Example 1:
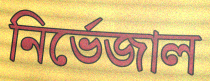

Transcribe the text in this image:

নিৰ্ভেজাল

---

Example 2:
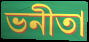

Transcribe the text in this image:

ভনীতা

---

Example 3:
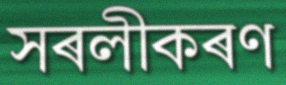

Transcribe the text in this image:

সৰলীকৰণ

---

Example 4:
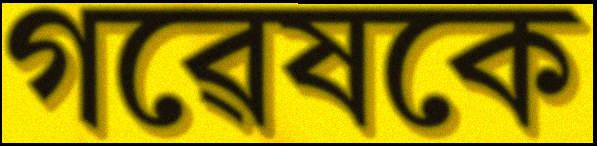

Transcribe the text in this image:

গৱেষকে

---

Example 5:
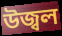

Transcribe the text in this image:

উজ্বল